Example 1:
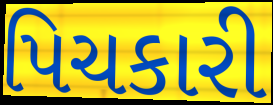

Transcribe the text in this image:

પિચકારી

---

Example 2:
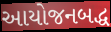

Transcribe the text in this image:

આયોજનબદ્ધ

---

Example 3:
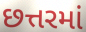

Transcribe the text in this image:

છત્તરમાં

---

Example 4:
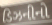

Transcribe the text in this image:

ડિઝનીનો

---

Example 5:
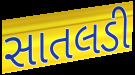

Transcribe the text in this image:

સાતલડી